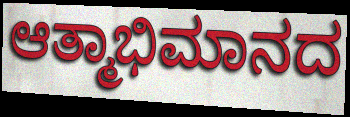
ಆತ್ಮಾಭಿಮಾನದ